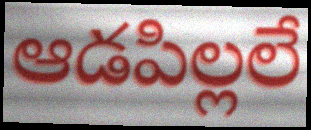
ఆడపిల్లలే